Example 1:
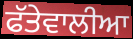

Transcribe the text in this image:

ਫੱਤੇਵਾਲੀਆ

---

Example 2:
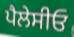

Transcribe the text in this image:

ਪੈਲੇਸੀਓ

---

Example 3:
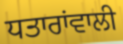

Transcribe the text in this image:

ਧਤਾਰਾਂਵਾਲੀ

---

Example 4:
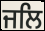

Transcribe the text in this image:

ਜਲਿ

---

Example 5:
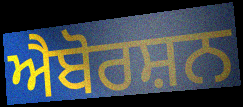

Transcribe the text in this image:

ਐਬੋਰਸ਼ਨ